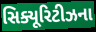
સિક્યૂરિટીઝના